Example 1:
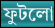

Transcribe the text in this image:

ফুটলো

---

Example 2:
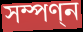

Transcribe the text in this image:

সম্পণ্ন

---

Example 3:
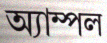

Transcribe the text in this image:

অ্যাম্পল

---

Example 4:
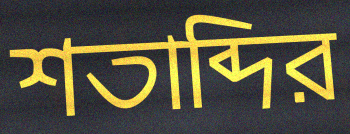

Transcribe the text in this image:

শতাব্দির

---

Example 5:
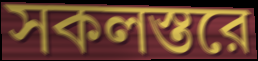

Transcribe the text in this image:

সকলস্তরে